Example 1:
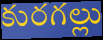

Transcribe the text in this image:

కురగల్లు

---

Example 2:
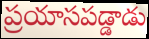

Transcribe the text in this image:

ప్రయాసపడ్డాడు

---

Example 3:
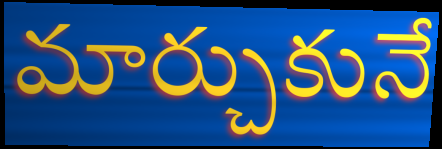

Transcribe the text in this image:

మార్చుకునే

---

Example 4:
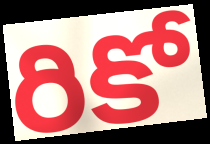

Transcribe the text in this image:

రికో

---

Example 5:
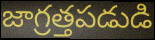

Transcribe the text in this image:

జాగ్రత్తపడుడి